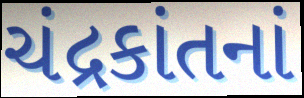
ચંદ્રકાંતનાં